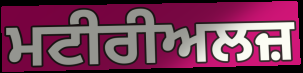
ਮਟੀਰੀਅਲਜ਼